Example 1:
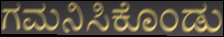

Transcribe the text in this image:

ಗಮನಿಸಿಕೊಂಡು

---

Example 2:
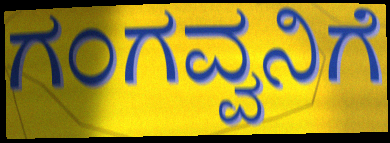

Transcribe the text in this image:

ಗಂಗವ್ವನಿಗೆ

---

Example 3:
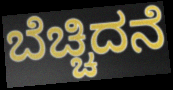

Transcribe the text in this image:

ಬೆಚ್ಚಿದನೆ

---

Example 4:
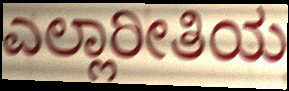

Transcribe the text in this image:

ಎಲ್ಲಾರೀತಿಯ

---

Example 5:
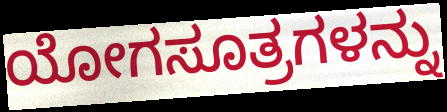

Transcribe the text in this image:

ಯೋಗಸೂತ್ರಗಳನ್ನು